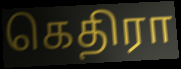
கெதிரா